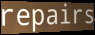
repairs